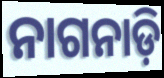
ନାଗନାଡ଼ି